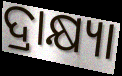
ଦ୍ରାକ୍ଷ୍ୟା